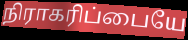
நிராகரிப்பையே